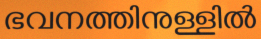
ഭവനത്തിനുള്ളിൽ